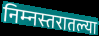
निम्नस्तरातल्या